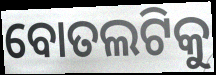
ବୋତଲଟିକୁ